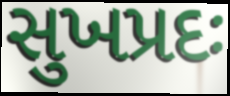
સુખપ્રદઃ